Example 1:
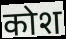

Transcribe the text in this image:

कोश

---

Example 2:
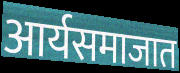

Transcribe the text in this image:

आर्यसमाजात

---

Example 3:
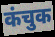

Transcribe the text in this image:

कंचुक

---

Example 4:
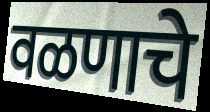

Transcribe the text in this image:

वळणाचे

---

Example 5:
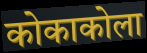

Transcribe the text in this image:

कोकाकोला